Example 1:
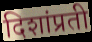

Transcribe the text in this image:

दिशांप्रती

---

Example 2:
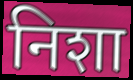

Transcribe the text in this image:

निशा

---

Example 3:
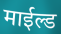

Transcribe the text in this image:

माईल्ड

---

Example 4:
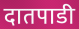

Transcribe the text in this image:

दातपाडी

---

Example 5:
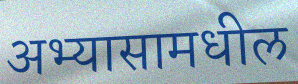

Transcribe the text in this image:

अभ्यासामधील